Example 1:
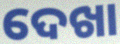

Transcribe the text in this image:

ଦେଖା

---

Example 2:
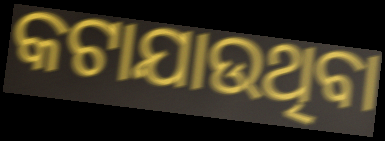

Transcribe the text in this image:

କଟାଯାଉଥିବା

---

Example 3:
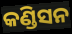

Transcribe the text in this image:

କଣ୍ଡିସନ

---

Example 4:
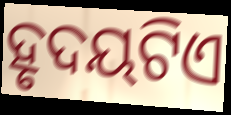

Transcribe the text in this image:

ହୃଦୟଟିଏ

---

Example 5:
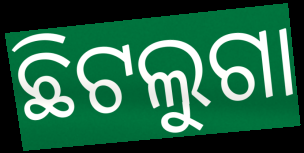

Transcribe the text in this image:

ଛିଟଲୁଗା